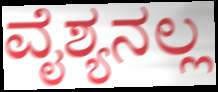
ವೈಶ್ಯನಲ್ಲ